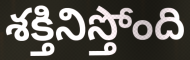
శక్తినిస్తోంది